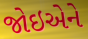
જોઇએને